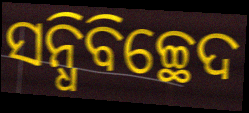
ସନ୍ଧିବିଚ୍ଛେଦ